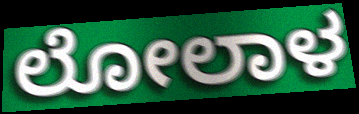
ಲೋಲಾಳ